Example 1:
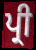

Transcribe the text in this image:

ਪ੍ਰੀ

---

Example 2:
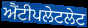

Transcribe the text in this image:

ਐਂਟੀਪਲੇਟਲੇਟ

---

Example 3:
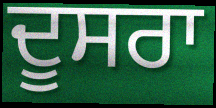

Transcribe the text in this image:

ਦੂਸਰਾ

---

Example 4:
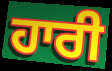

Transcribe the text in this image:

ਹਾਰੀ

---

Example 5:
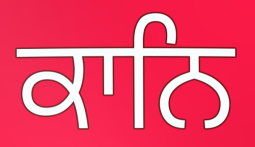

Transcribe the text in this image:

ਕਾਨਿ